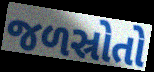
જળસ્રોતો